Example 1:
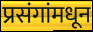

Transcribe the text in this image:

प्रसंगांमधून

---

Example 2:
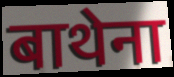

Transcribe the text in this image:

बाथेना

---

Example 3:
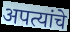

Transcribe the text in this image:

अपत्यांचे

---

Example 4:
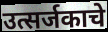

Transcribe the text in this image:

उत्सर्जकाचे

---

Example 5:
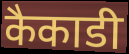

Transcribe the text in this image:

कैकाडी